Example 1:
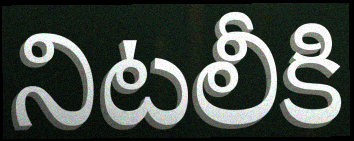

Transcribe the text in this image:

నిటలీకి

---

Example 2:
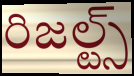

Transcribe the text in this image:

రిజల్ట్స్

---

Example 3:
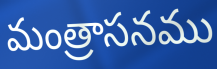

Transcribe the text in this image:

మంత్రాసనము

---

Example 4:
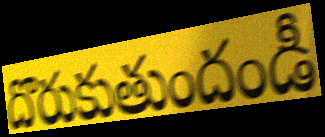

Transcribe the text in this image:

దొరుకుతుందండీ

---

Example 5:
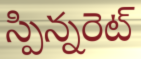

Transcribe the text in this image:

స్పిన్నరెట్